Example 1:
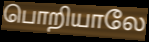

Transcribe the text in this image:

பொறியாலே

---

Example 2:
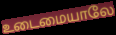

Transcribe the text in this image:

உடைமையாலே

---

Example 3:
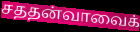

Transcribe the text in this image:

சததன்வாவைக்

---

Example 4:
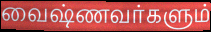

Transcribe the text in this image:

வைஷ்ணவர்களும்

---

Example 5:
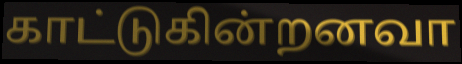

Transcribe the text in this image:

காட்டுகின்றனவா